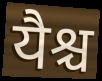
यैश्च